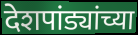
देशपांड्यांच्या